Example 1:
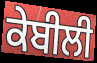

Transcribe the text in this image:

ਕੇਬੀਲੀ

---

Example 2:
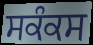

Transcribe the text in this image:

ਸਕੰਕਸ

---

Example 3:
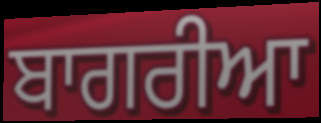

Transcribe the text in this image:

ਬਾਗਰੀਆ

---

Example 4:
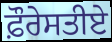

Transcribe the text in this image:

ਫ਼ੌਰੇਸਤੀਏ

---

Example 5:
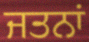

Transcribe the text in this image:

ਜਤਨਾਂ